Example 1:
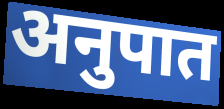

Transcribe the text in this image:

अनुपात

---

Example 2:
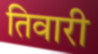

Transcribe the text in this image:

तिवारी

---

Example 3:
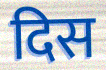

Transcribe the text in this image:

दिस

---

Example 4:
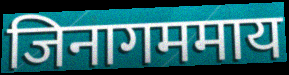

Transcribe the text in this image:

जिनागममाय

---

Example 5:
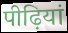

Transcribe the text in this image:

पीढ़ियां